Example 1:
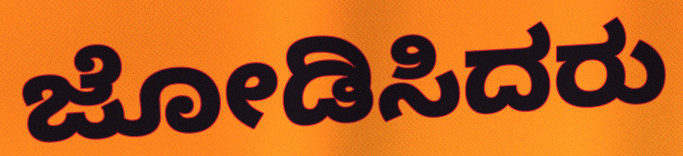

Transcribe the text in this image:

ಜೋಡಿಸಿದರು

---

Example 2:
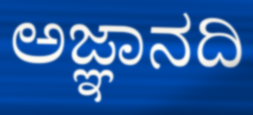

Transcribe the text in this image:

ಅಜ್ಞಾನದಿ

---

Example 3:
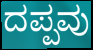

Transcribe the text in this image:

ದಪ್ಪವು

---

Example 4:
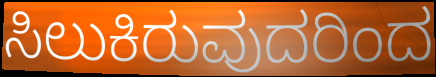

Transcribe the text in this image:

ಸಿಲುಕಿರುವುದರಿಂದ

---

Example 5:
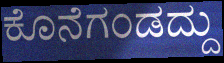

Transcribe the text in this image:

ಕೊನೆಗಂಡದ್ದು